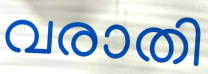
വരാതി